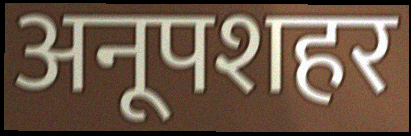
अनूपशहर